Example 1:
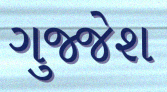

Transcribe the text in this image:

ગુજ્જેશ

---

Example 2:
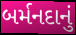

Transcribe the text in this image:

બર્મનદાનું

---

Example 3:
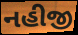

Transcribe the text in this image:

નહીજી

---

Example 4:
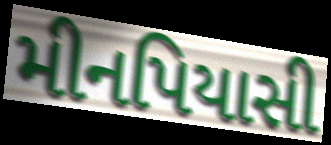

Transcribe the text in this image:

મીનપિયાસી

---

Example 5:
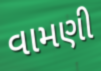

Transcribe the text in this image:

વામણી